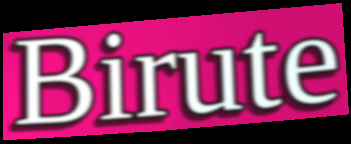
Birute